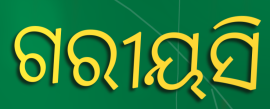
ଗରୀୟସି